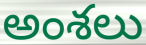
అంశలు